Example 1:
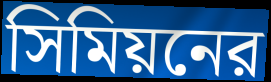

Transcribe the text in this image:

সিমিয়নের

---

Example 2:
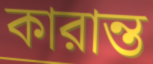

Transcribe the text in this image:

কারান্ত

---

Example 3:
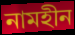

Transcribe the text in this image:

নামহীন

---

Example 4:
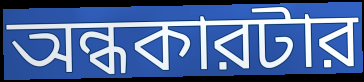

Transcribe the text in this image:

অন্ধকারটার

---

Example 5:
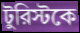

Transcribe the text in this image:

টুরিস্টকে